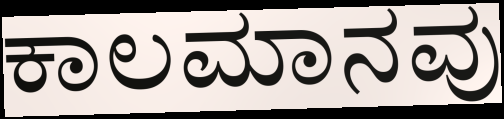
ಕಾಲಮಾನವು